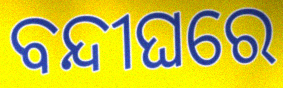
ବନ୍ଦୀଘରେ